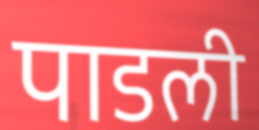
पाडली